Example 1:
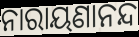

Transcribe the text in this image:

ନାରାୟଣାନନ୍ଦ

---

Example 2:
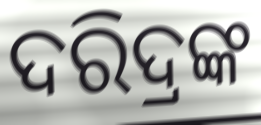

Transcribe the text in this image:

ଦରିଦ୍ରଙ୍କ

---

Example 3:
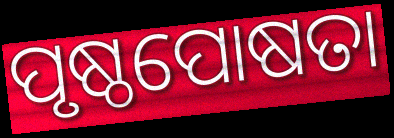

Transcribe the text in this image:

ପୃଷ୍ଠପୋଷତା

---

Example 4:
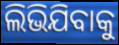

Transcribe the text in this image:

ଲିଭିଯିବାକୁ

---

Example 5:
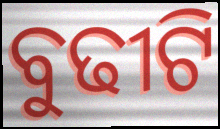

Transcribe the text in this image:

ବୁଢୀଟି